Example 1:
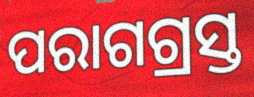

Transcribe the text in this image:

ପରାଗଗ୍ରସ୍ତ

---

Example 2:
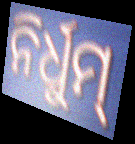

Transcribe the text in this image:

ନିର୍ଧୁମ୍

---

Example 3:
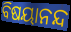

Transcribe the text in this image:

ବିଷୟାନନ୍ଦ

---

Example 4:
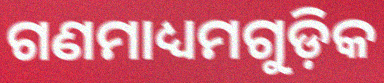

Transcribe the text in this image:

ଗଣମାଧ୍ୟମଗୁଡ଼ିକ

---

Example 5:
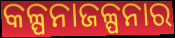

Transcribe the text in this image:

କଳ୍ପନାଜଳ୍ପନାର